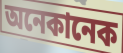
অনেকানেক